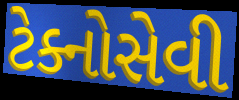
ટેક્નોસેવી